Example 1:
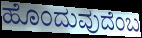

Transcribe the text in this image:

ಹೊಂದುವುದೆಂಬ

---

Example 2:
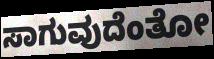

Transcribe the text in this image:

ಸಾಗುವುದೆಂತೋ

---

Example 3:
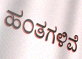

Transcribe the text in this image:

ಹಂತಗಳಿವೆ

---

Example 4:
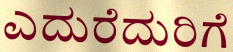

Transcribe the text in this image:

ಎದುರೆದುರಿಗೆ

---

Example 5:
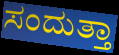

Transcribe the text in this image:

ಸಂದುತ್ತಾ